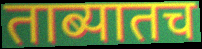
ताब्यातच